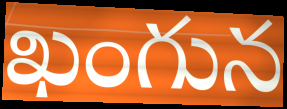
ఖంగున